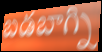
బడబాగ్ని